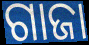
ଗାଜା